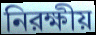
নিরক্ষীয়